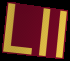
LII